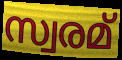
സ്വരമ്